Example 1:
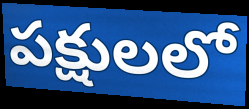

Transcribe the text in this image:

పక్షులలో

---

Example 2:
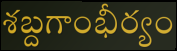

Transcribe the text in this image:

శబ్దగాంభీర్యం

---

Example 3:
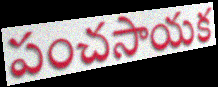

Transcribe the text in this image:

పంచసాయక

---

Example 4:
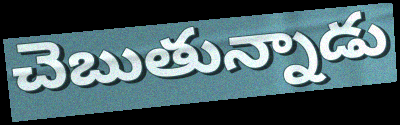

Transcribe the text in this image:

చెబుతున్నాడు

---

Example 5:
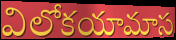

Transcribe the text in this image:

విలోకయామాస